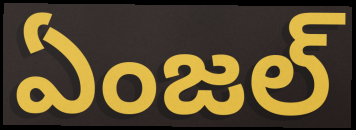
ఏంజల్